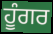
ਹੂੰਗਰ